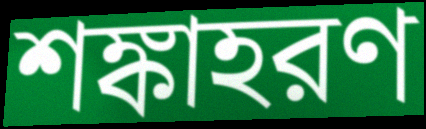
শঙ্কাহরণ